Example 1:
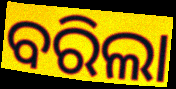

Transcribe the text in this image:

ବରିଲା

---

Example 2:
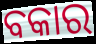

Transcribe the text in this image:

ବକାର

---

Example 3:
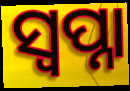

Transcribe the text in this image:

ସ୍ୱପ୍ନା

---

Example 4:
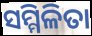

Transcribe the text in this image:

ସମ୍ମିଳିତା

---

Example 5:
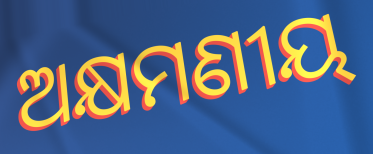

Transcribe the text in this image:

ଅକ୍ଷମଣୀୟ